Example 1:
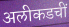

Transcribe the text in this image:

अलीकडचीं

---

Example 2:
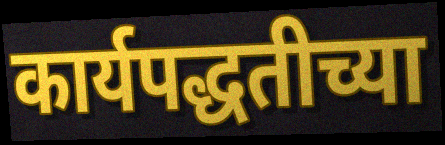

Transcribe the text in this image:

कार्यपद्धतीच्या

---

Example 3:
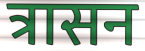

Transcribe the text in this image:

त्रासन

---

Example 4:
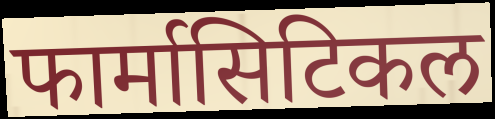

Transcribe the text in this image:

फार्मासिटिकल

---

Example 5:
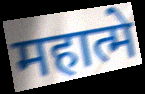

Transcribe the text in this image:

महात्मे